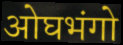
ओघभंगो